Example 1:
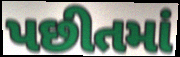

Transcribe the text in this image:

પછીતમાં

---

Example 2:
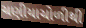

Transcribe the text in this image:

ચણીયાચોળીથી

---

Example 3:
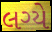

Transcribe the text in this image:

લગ્યે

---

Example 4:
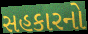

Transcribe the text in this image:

સહકારનો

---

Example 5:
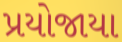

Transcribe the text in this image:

પ્રયોજાયા